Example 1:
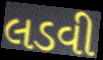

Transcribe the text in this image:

લડવી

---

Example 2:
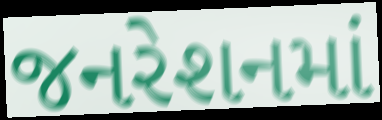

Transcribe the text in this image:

જનરેશનમાં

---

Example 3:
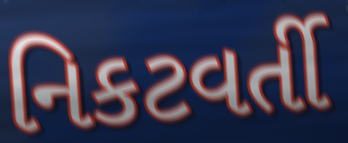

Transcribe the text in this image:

નિકટવર્તી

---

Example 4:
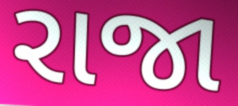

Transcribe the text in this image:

રાજા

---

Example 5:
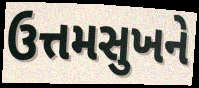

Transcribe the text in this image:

ઉત્તમસુખને